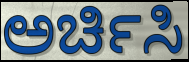
ಅರ್ಚಿಸಿ